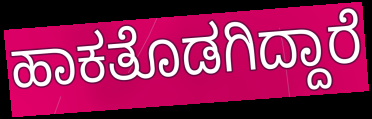
ಹಾಕತೊಡಗಿದ್ದಾರೆ